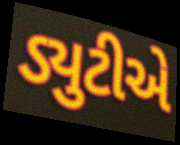
ડ્યુટીએ